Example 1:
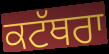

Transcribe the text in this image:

ਕਟੱਥਰਾ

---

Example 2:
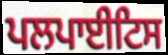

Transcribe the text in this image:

ਪਲਪਾਈਟਿਸ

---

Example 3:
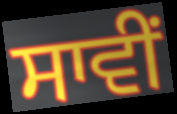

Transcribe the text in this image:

ਸਾਵੀਂ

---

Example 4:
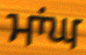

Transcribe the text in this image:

ਮਾਂਘ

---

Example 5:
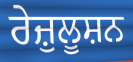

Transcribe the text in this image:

ਰੇਜ਼ੁਲੂਸ਼ਨ